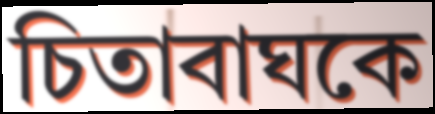
চিতাবাঘকে